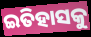
ଇତିହାସକୁ